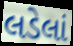
લડેલાં